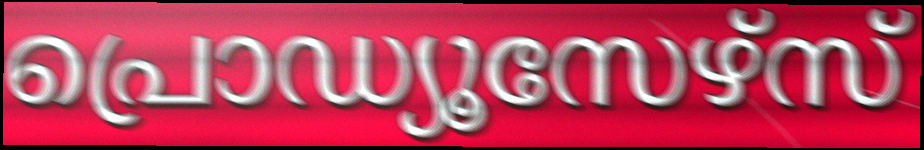
പ്രൊഡ്യൂസേഴ്സ്